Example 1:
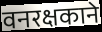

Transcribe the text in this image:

वनरक्षकाने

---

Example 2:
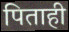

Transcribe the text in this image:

पिताही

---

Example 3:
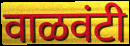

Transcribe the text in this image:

वाळवंटी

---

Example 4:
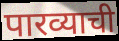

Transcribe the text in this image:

पारव्याची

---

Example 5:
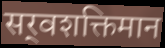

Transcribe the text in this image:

सर्वशक्तिमान